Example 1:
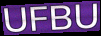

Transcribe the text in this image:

UFBU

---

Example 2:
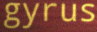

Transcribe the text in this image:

gyrus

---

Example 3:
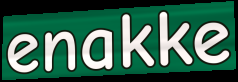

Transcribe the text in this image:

enakke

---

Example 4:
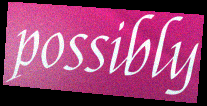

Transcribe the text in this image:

possibly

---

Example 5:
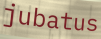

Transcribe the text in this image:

jubatus